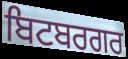
ਬਿਟਬਰਗਰ